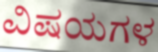
ವಿಷಯಗಳ